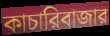
কাচারিবাজার